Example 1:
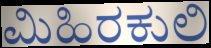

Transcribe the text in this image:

ಮಿಹಿರಕುಲಿ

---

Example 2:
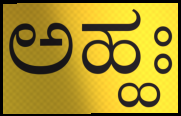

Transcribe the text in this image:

ಅಹ್ಹಃ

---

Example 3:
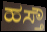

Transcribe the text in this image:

ಹಸ್ತೌ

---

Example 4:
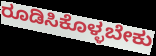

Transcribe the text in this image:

ರೂಡಿಸಿಕೊಳ್ಳಬೇಕು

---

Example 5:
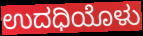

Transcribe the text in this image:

ಉದಧಿಯೊಳು